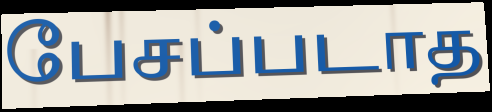
பேசப்படாத